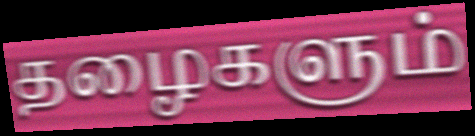
தழைகளும்